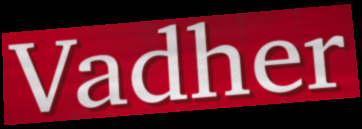
Vadher